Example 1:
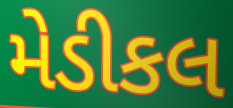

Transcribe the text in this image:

મેડીકલ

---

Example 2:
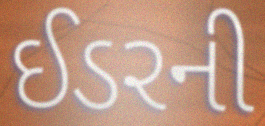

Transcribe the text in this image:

ઈડરની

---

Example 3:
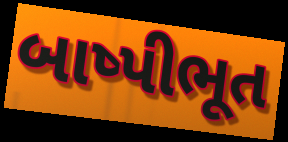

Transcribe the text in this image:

બાષ્પીભૂત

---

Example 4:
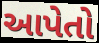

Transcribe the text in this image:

આપેતો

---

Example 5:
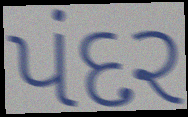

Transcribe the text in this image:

પંદર